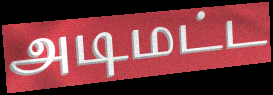
அடிமட்ட